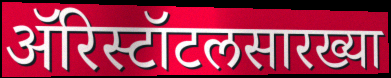
ॲरिस्टॉटलसारख्या